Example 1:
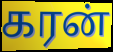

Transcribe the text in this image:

கரன்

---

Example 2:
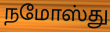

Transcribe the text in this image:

நமோஸ்து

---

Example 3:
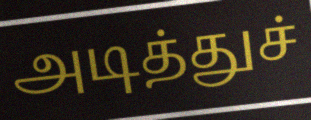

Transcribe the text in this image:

அடித்துச்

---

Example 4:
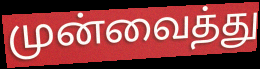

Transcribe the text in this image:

முன்வைத்து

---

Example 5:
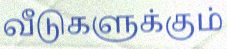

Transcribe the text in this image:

வீடுகளுக்கும்